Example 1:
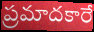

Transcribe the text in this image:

ప్రమాదకారే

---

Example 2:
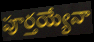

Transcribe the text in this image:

పూర్తయ్యేనా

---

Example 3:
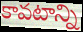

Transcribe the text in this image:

కావటాన్ని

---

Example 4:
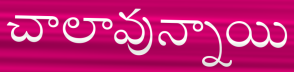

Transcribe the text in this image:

చాలావున్నాయి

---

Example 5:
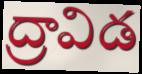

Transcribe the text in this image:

ద్రావిడ